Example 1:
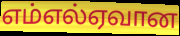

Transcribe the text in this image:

எம்எல்ஏவான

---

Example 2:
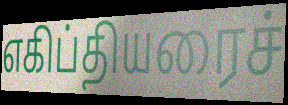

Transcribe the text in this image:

எகிப்தியரைச்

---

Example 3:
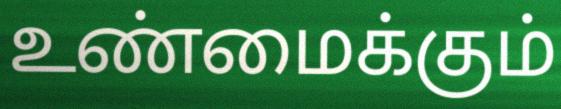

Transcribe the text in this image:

உண்மைக்கும்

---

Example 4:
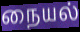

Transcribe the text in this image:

நையல்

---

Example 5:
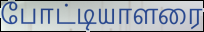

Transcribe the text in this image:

போட்டியாளரை